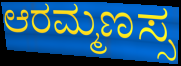
ಆರಮ್ಮಣಸ್ಸ